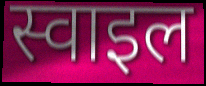
स्वाइल